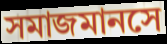
সমাজমানসে